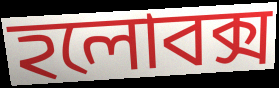
হলোবক্স